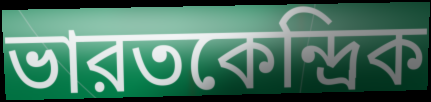
ভারতকেন্দ্রিক